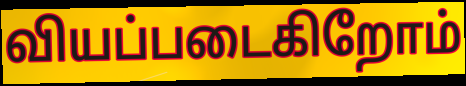
வியப்படைகிறோம்